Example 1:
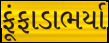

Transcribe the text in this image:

ફૂંફાડાભર્યા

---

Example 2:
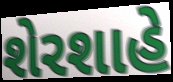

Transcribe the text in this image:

શેરશાહે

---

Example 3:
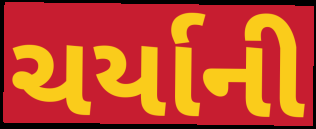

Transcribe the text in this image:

ચર્યાની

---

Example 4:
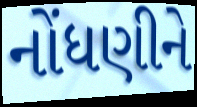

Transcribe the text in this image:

નોંધણીને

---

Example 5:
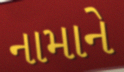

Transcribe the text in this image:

નામાને